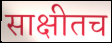
साक्षीतच